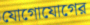
যোগোযোগের